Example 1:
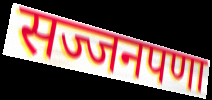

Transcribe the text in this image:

सज्जनपणा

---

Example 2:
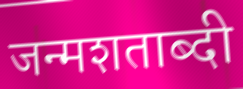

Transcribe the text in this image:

जन्मशताब्दी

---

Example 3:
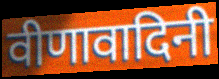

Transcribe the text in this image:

वीणावादिनी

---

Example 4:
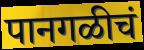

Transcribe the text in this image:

पानगळीचं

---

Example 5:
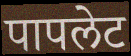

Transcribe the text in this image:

पापलेट